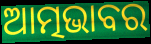
ଆତ୍ମଭାବର